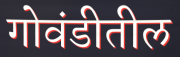
गोवंडीतील